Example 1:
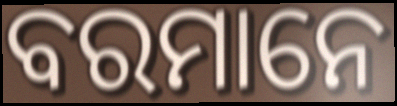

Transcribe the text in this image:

ବରମାନେ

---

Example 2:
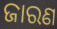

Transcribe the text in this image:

ଜାରଣ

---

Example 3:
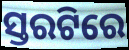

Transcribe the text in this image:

ସ୍ତରଟିରେ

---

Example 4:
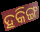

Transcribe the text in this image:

ହକିଙ୍ଗ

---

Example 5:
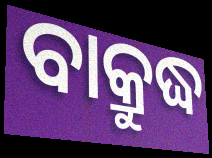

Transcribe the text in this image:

ବାକ୍ରୁଦ୍ଧ